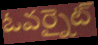
ఓవర్నైట్